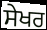
ਸੇਖਰ